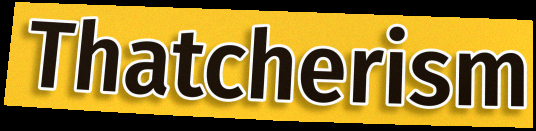
Thatcherism